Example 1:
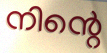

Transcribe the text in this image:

നിന്റെ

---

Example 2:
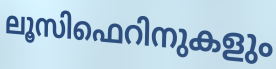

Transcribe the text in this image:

ലൂസിഫെറിനുകളും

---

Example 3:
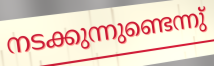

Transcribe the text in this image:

നടക്കുന്നുണ്ടെന്നു്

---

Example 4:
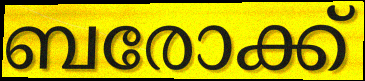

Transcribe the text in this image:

ബരോക്ക്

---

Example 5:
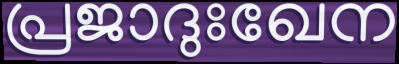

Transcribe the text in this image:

പ്രജാദുഃഖേന